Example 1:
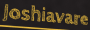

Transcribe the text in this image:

Joshiavare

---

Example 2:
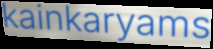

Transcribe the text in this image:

kainkaryams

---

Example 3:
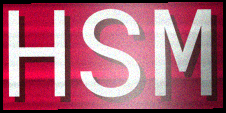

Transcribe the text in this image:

HSM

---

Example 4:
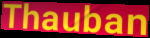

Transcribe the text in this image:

Thauban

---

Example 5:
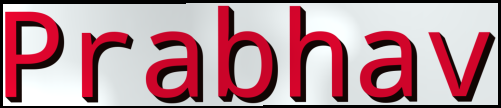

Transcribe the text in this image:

Prabhav